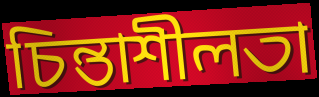
চিন্তাশীলতা